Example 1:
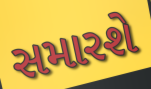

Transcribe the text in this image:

સમારશે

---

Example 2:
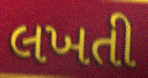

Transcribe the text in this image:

લખતી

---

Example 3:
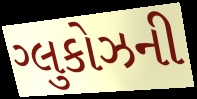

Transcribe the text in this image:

ગ્લુકોઝની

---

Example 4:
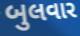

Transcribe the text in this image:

બુલવાર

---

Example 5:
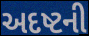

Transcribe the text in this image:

અદષ્ટની